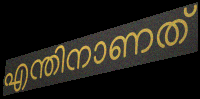
എന്തിനാണത്